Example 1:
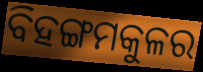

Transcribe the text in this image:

ବିହଙ୍ଗମକୁଳର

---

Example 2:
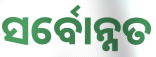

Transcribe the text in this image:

ସର୍ବୋନ୍ନତ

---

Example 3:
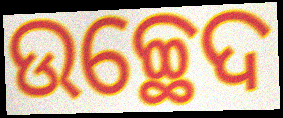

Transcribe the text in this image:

ଉଚ୍ଛେଦ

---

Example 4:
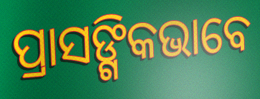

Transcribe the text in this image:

ପ୍ରାସଙ୍ଗିକଭାବେ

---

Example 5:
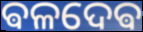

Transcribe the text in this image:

ଵଳଦେଵ